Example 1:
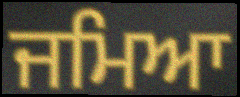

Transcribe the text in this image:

ਜਮਿਆ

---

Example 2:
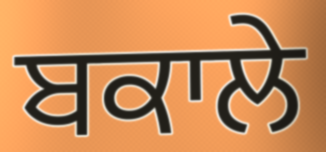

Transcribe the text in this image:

ਬਕਾਲੇ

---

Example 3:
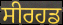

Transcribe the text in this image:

ਸੀਰਹਡ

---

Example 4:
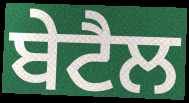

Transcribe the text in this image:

ਬੇਟੈਲ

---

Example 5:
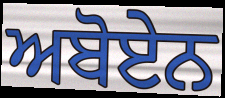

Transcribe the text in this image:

ਅਬੋਏਨ